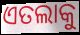
ଏତଲାକୁ